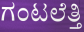
ಗಂಟಲೆತ್ತಿ